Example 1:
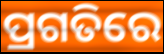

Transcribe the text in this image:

ପ୍ରଗତିରେ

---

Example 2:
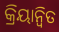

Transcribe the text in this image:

କ୍ରିୟାନ୍ୱିତ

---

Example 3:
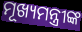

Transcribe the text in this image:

ମୂଖ୍ୟମନ୍ତ୍ରୀଙ୍କ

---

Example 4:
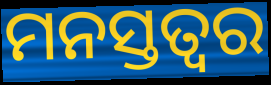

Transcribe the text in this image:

ମନସ୍ତତ୍ଵର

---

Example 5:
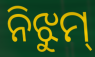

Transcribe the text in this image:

ନିଝୁମ୍